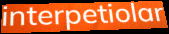
interpetiolar